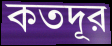
কতদূর